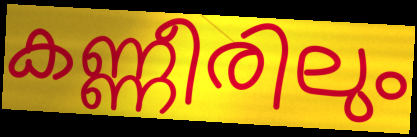
കണ്ണീരിലും